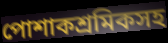
পোশাকশ্রমিকসহ